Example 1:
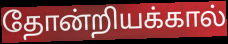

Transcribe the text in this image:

தோன்றியக்கால்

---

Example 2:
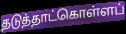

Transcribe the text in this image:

தடுத்தாட்கொள்ளப்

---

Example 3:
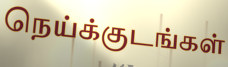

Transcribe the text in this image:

நெய்க்குடங்கள்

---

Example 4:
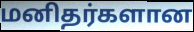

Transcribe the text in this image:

மனிதர்களான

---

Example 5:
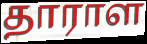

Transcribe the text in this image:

தாராள